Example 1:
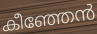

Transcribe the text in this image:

കീഞ്ഞേൻ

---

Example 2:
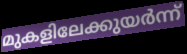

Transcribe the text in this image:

മുകളിലേക്കുയർന്ന്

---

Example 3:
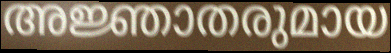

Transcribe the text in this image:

അജ്ഞാതരുമായ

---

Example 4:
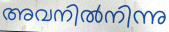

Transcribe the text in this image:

അവനിൽനിന്നു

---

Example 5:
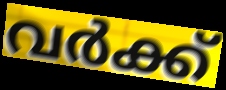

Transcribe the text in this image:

വർക്ക്